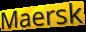
Maersk